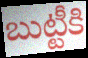
బుట్టీకి